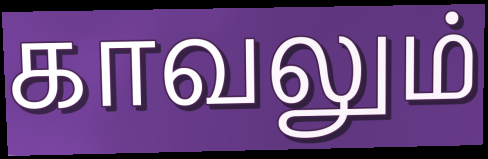
காவலும்